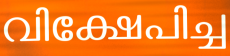
വിക്ഷേപിച്ച